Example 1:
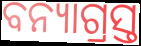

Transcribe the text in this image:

ବନ୍ୟାଗ୍ରସ୍ତ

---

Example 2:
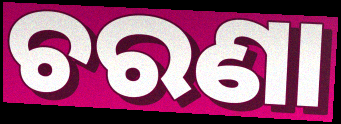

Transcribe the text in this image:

ଚରଣା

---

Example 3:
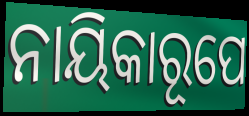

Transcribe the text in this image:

ନାୟିକାରୂପେ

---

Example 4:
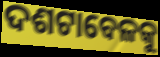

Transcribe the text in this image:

ଦଶଟାବେଳକୁ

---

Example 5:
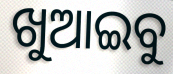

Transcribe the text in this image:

ଖୁଆଇବୁ